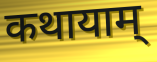
कथायाम्